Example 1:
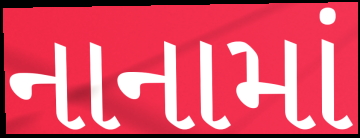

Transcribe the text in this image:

નાનામાં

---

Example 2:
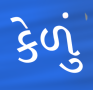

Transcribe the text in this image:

કેળું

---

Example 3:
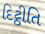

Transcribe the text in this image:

દિટ્ઠીતિ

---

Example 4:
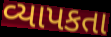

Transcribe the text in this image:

વ્યાપકતા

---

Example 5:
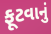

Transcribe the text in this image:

ફૂટવાનું